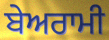
ਬੇਅਰਾਮੀ